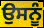
ਉਸਨੂੰ